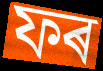
ফৰ